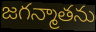
జగన్మాతను